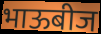
भाऊबीज